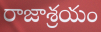
రాజాశ్రయం